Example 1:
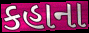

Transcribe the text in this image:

કહાના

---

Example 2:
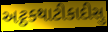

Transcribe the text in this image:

અટ્ઠકથાટીકાદીસુ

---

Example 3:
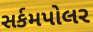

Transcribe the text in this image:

સર્કમપોલર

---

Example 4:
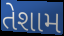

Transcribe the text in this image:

તેશામ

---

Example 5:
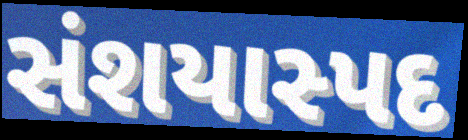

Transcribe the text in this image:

સંશયાસ્પદ